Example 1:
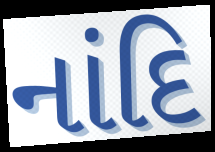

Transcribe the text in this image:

નાંદિ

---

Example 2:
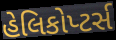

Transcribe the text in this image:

હેલિકોપ્ટર્સ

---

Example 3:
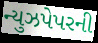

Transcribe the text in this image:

ન્યુઝપેપરની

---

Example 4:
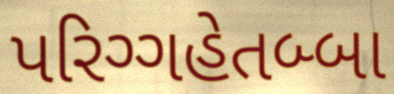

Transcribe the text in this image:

પરિગ્ગહેતબ્બા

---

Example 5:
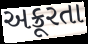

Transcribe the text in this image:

અક્રૂરતા